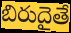
బిరుదైతే